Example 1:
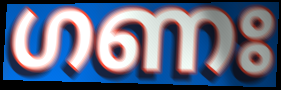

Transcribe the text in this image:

ഗണഃ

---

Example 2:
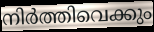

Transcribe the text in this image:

നിർത്തിവെക്കും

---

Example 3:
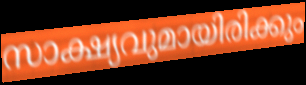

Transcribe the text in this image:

സാക്ഷ്യവുമായിരിക്കും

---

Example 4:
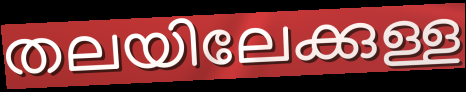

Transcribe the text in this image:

തലയിലേക്കുള്ള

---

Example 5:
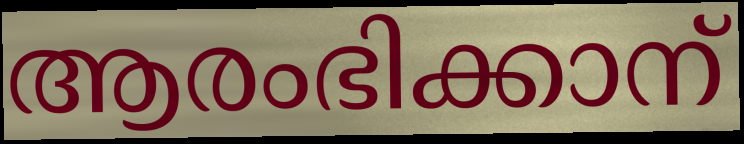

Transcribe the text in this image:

ആരംഭിക്കാന്